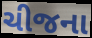
ચીજના